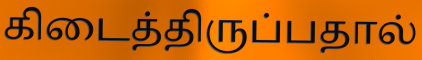
கிடைத்திருப்பதால்